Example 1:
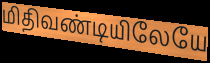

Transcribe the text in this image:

மிதிவண்டியிலேயே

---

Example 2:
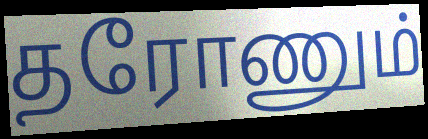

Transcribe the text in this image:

தரோணும்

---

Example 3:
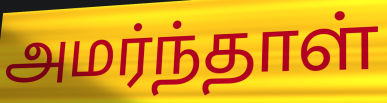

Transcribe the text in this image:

அமர்ந்தாள்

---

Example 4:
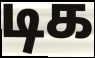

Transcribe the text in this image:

டிக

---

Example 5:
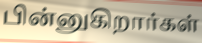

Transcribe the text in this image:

பின்னுகிறார்கள்